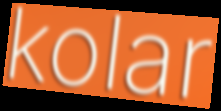
kolar